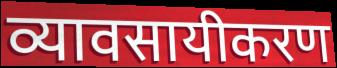
व्यावसायीकरण